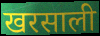
खरसाली